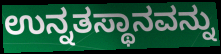
ಉನ್ನತಸ್ಥಾನವನ್ನು